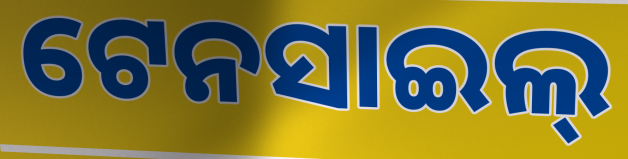
ଟେନସାଇଲ୍